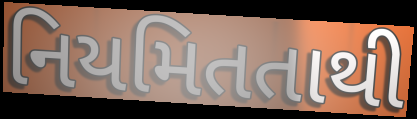
નિયમિતતાથી